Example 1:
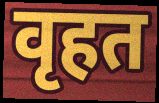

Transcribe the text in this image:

वृहत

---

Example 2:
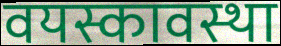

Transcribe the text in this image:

वयस्कावस्था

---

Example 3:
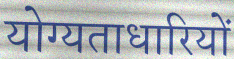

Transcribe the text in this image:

योग्यताधारियों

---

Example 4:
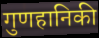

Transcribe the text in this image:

गुणहानिकी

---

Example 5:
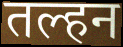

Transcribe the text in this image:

तल्हन